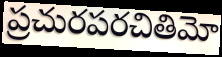
ప్రచురపరచితిమో